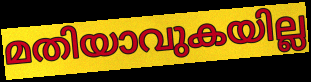
മതിയാവുകയില്ല